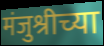
मंजुश्रीच्या